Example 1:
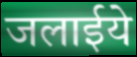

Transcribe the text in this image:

जलाईये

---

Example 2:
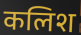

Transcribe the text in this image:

कलिश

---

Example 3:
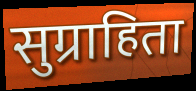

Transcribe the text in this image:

सुग्राहिता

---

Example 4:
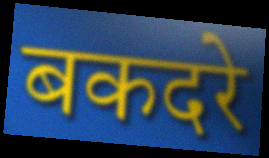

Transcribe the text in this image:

बकदरे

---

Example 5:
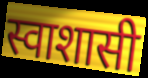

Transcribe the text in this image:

स्वाशासी